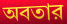
অবতার